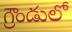
గ్రౌండులో